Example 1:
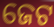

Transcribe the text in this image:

ଜେଟ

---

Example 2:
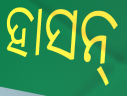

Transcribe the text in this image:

ହାସନ୍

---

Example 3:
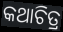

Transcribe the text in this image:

କଥାଚିତ୍ର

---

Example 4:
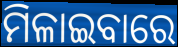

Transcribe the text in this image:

ମିଳାଇବାରେ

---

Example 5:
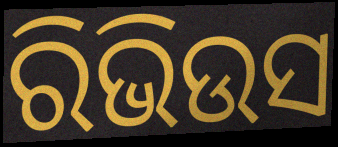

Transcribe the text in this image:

ରିଭିଉସ